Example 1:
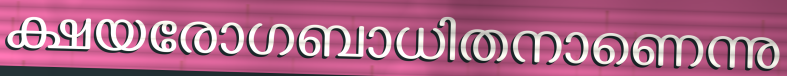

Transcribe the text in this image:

ക്ഷയരോഗബാധിതനാണെന്നു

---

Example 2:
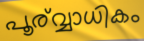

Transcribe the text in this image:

പൂര്വ്വാധികം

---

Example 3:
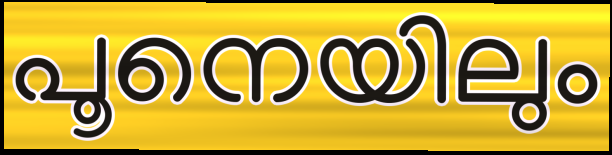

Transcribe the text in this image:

പൂനെയിലും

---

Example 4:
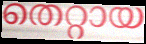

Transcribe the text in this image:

തെറ്റായ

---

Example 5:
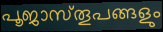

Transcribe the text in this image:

പൂജാസ്‌തൂപങ്ങളും